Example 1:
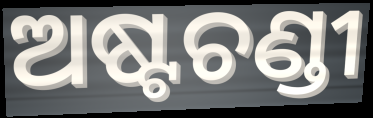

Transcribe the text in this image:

ଅଷ୍ଟଚଣ୍ଡୀ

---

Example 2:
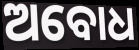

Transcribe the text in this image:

ଅବୋଧ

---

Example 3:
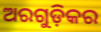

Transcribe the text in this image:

ଅରଗୁଡ଼ିକର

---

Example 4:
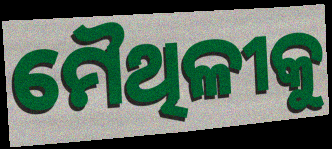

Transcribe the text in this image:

ମୈଥିଳୀକୁ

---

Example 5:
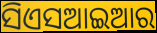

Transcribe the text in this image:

ସିଏସଆଇଆର